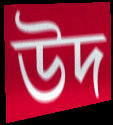
উদ